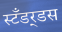
स्टँडर्डस